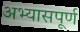
अभ्यासपूर्ण